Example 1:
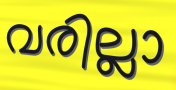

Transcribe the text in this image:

വരില്ലാ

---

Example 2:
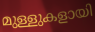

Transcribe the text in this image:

മുള്ളുകളായി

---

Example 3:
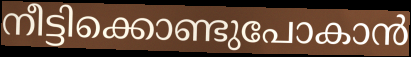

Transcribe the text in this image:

നീട്ടിക്കൊണ്ടുപോകാൻ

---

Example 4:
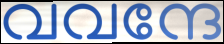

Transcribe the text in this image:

വവന്ദേ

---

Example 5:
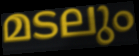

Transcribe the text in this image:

മടലും